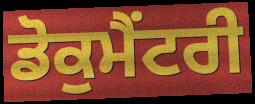
ਡੋਕੁਮੈਂਟਰੀ